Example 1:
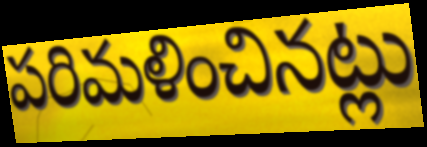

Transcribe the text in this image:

పరిమళించినట్లు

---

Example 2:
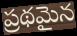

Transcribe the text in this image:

ప్రథమైన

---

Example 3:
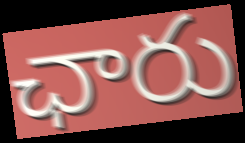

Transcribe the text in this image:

ఛారు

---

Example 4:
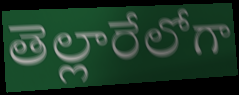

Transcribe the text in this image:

తెల్లారేలోగా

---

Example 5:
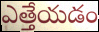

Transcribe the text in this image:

ఎత్తేయడం